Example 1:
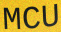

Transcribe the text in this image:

MCU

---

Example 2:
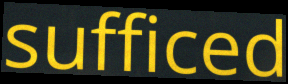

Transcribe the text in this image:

sufficed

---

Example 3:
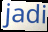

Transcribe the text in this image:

jadi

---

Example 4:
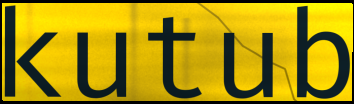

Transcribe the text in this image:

kutub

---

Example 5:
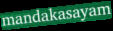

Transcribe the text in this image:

mandakasayam